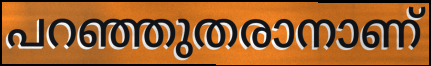
പറഞ്ഞുതരാനാണ്